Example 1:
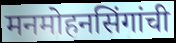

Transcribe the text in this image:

मनमोहनसिंगांची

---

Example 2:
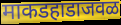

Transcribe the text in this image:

माकडहाडाजवळ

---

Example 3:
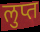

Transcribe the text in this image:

लुप्त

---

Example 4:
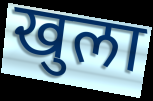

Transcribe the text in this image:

खुला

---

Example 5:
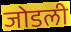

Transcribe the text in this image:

जोडली